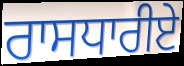
ਰਾਸਧਾਰੀਏ